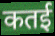
कतई